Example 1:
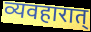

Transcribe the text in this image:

व्यवहारात्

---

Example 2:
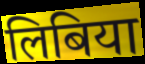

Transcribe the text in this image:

लिबिया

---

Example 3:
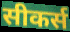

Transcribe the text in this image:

सीकर्स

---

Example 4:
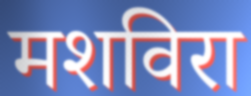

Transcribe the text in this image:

मशविरा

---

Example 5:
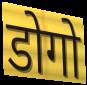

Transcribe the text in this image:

डोगो